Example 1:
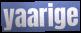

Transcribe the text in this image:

yaarige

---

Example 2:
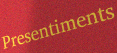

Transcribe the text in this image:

Presentiments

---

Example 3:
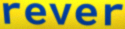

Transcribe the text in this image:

rever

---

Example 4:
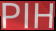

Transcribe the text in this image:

PIH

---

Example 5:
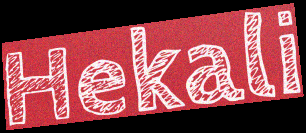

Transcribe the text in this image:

Hekali